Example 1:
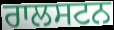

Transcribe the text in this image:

ਰਾਲਸਟਨ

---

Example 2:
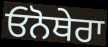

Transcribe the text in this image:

ਓਨੋਥੇਰਾ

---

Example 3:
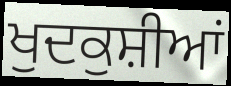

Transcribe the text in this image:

ਖੁਦਕੁਸ਼ੀਆਂ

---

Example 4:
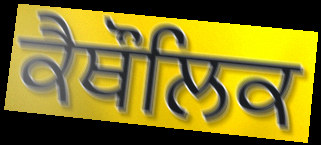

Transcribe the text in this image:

ਕੈਥੌਲਿਕ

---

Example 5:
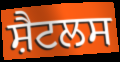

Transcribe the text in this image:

ਸ਼ੈਟਲਸ